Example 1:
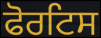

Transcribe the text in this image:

ਫੋਰਟਿਸ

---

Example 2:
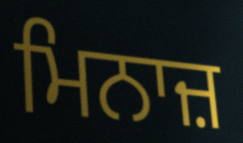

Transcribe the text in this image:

ਮਿਨਾਜ਼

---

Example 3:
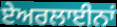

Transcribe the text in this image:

ਏਅਰਲਾਈਨਾਂ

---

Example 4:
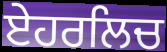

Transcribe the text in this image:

ਏਹਰਲਿਚ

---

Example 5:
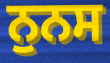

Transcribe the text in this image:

ਨੁਨਸ